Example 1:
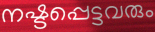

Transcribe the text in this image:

നഷ്ടപ്പെട്ടവരും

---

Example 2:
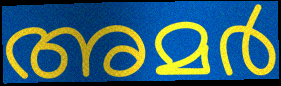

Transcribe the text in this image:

അമർ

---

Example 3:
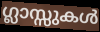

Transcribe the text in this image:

ഗ്ലാസ്സുകൾ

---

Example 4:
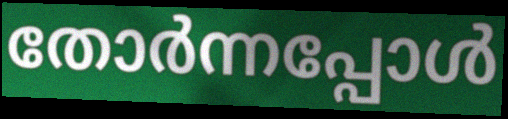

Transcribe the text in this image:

തോർന്നപ്പോൾ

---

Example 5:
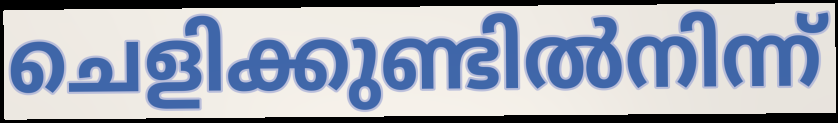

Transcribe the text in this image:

ചെളിക്കുണ്ടിൽനിന്ന്